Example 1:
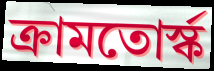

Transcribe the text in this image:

ক্রামতোর্স্ক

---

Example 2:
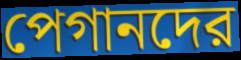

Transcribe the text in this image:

পেগানদের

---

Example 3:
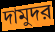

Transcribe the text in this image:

দামুদর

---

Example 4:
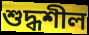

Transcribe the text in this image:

শুদ্ধশীল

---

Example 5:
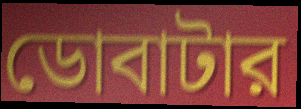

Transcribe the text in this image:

ডোবাটার